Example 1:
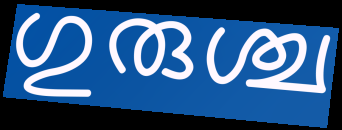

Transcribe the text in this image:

ഗുരുശ്ച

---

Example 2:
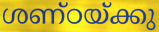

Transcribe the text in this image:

ശണ്ഠയ്ക്കു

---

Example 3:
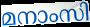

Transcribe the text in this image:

മനാംസി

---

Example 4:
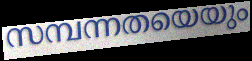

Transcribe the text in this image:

സമ്പന്നതയെയും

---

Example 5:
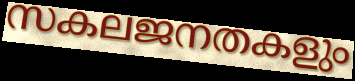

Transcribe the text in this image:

സകലജനതകളും